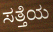
ಸತ್ತೆಯ